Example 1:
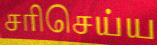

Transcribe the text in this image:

சரிசெய்ய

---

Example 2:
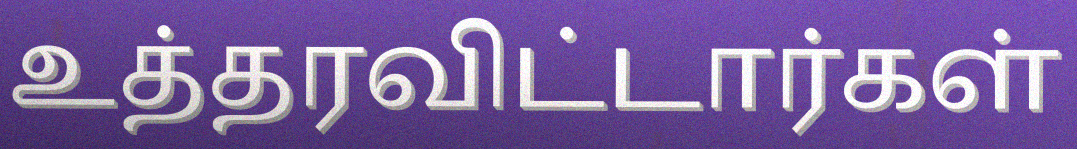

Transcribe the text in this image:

உத்தரவிட்டார்கள்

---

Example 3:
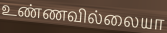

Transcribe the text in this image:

உண்ணவில்லையா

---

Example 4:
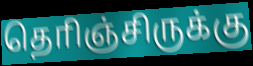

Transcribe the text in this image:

தெரிஞ்சிருக்கு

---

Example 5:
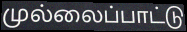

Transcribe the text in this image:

முல்லைப்பாட்டு